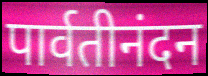
पार्वतीनंदन